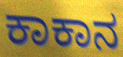
ಕಾಕಾನ